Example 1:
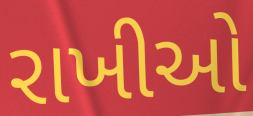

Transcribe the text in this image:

રાખીઓ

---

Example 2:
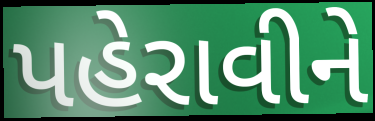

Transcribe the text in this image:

પહેરાવીને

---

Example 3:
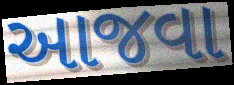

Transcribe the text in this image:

આજવા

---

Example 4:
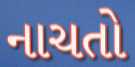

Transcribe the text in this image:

નાચતો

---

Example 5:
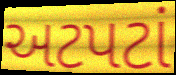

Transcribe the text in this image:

અટપટાં